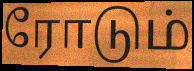
ரோடும்